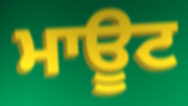
ਮਾਊਟ